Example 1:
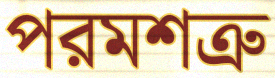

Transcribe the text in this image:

পরমশত্রু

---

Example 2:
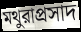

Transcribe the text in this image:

মথুরাপ্রসাদ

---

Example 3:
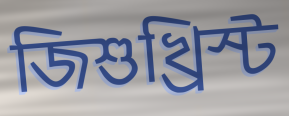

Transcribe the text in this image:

জিশুখ্রিস্ট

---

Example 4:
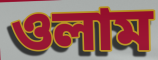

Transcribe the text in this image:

ওলাম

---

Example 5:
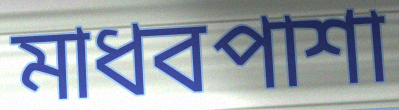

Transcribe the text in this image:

মাধবপাশা